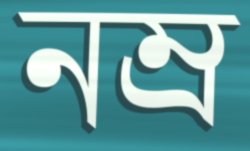
নম্ৰ